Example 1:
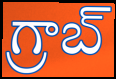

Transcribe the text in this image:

గ్రాబ్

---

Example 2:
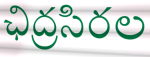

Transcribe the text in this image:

ఛిద్రసిరల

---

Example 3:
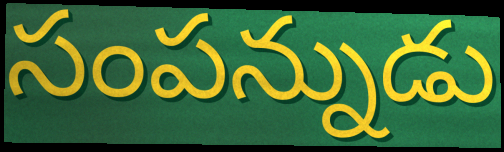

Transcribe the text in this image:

సంపన్నుడు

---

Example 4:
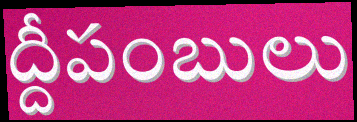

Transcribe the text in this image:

ద్దీపంబులు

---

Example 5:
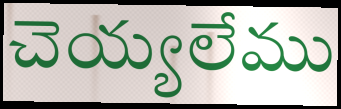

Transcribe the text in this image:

చెయ్యలేము